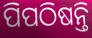
ପିପଠିଷନ୍ତି